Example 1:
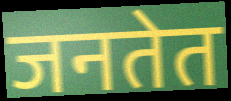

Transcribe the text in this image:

जनतेत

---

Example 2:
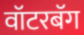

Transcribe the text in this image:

वॉटरबॅग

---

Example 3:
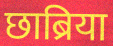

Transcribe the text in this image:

छाब्रिया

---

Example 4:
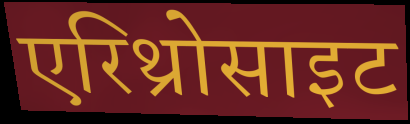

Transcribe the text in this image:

एरिथ्रोसाइट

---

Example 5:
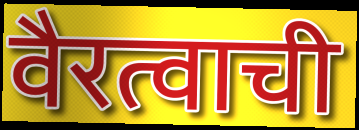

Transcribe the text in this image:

वैरत्वाची